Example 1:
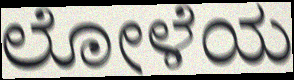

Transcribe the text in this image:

ಲೋಳೆಯ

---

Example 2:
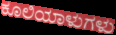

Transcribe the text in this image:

ಕೂಲಿಯಾಳುಗಳು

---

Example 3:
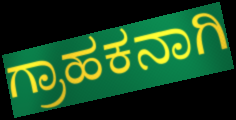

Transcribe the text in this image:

ಗ್ರಾಹಕನಾಗಿ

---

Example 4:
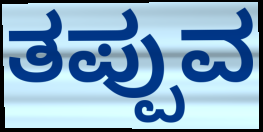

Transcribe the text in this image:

ತಪ್ಪುವ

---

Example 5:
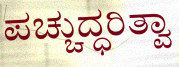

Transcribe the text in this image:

ಪಚ್ಚುದ್ಧರಿತ್ವಾ